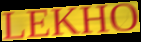
LEKHO